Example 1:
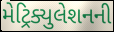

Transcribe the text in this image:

મેટ્રિક્યુલેશનની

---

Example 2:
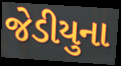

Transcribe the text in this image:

જેડીયુના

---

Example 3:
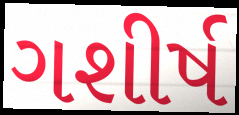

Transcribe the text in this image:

ગશીર્ષ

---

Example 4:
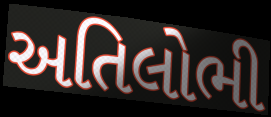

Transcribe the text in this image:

અતિલોભી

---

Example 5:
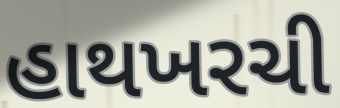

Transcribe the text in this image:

હાથખરચી